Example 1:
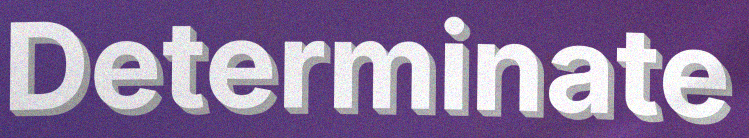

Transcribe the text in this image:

Determinate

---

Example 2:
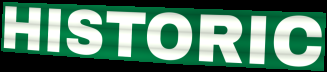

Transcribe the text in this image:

HISTORIC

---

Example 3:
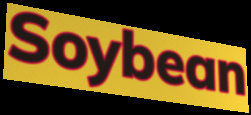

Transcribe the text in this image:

Soybean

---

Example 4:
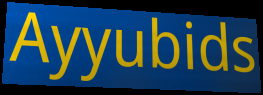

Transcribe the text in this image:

Ayyubids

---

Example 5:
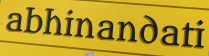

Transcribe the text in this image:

abhinandati